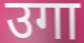
उगा